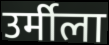
उर्मीला